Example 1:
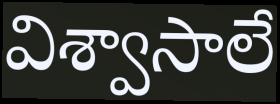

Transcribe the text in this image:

విశ్వాసాలే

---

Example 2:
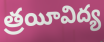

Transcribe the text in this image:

త్రయీవిద్య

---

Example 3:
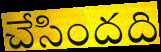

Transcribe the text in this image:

చేసిందది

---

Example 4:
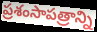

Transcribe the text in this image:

ప్రశంసాపత్రాన్ని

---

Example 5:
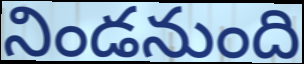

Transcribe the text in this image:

నిండనుంది